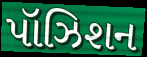
પૉઝિશન